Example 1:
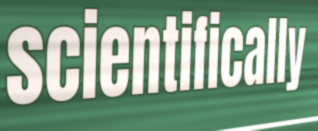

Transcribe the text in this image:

scientifically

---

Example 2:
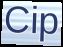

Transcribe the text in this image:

Cip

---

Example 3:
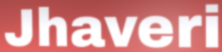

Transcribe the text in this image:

Jhaveri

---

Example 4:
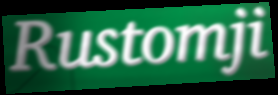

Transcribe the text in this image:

Rustomji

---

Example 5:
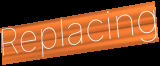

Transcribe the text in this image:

Replacing